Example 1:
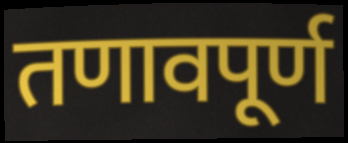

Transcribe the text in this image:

तणावपूर्ण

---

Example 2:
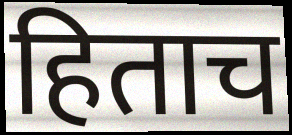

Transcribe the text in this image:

हिताच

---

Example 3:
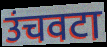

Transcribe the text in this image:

उंचवटा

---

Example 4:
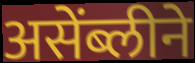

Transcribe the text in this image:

असेंब्लीने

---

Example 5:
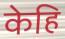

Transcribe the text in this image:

केहि